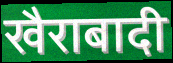
खैराबादी